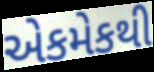
એકમેકથી